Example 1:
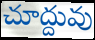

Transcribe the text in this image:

చూద్దువు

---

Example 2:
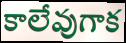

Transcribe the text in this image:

కాలేవుగాక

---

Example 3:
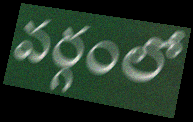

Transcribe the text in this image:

వర్గంలో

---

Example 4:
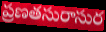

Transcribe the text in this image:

ప్రణతసురాసుర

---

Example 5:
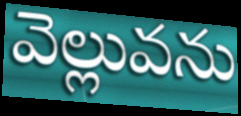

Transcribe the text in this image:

వెల్లువను